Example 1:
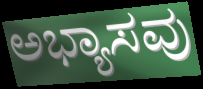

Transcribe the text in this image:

ಅಭ್ಯಾಸವು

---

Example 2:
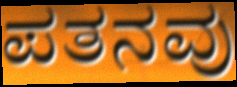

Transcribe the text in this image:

ಪತನವು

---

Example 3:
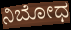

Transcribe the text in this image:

ನಿಬೋಧ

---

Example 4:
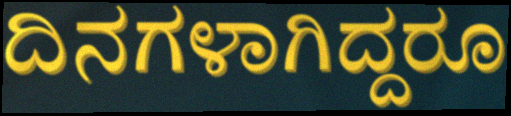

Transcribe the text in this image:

ದಿನಗಳಾಗಿದ್ದರೂ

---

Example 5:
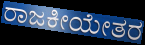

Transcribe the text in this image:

ರಾಜಕೀಯೇತರ